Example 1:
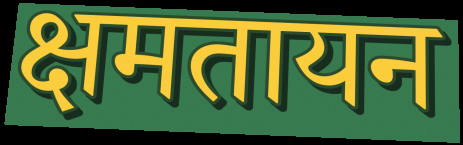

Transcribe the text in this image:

क्षमतायन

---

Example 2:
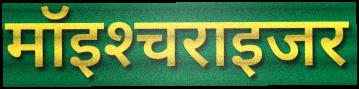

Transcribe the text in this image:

मॉइश्‍चराइजर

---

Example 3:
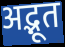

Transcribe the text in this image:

अद्भूत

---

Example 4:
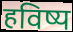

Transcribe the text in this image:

हविष्‍य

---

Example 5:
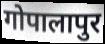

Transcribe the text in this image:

गोपालापुर